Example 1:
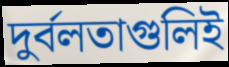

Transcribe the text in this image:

দুর্বলতাগুলিই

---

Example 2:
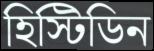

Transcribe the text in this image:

হিস্টিডিন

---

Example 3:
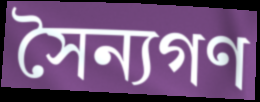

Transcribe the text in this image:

সৈন্যগণ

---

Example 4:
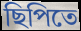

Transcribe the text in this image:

ছিপিতে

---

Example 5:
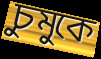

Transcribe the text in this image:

চুমুকে